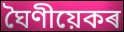
ঘৈণীয়েকৰ